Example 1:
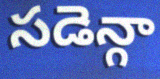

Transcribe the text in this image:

సడెన్గా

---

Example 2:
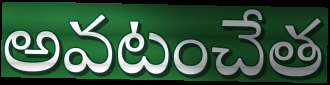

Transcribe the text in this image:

అవటంచేత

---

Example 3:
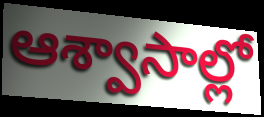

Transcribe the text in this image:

ఆశ్వాసాల్లో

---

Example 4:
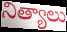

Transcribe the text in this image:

నిత్యాలు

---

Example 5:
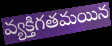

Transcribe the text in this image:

వ్యక్తిగతమయిన